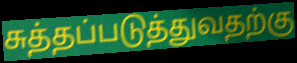
சுத்தப்படுத்துவதற்கு